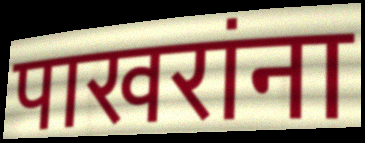
पाखरांना